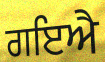
ਗਇਐ